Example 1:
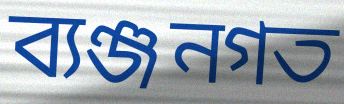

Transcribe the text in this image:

ব্যঞ্জনগত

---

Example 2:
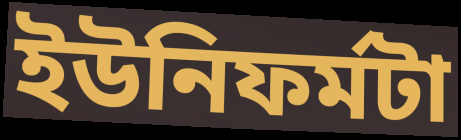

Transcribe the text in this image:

ইউনিফর্মটা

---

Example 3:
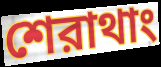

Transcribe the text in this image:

শেরাথাং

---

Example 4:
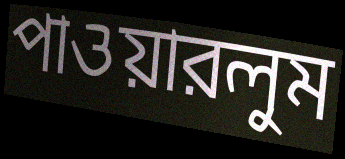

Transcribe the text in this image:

পাওয়ারলুম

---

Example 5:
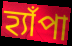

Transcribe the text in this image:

হ্যাঁপা